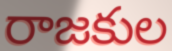
రాజకుల